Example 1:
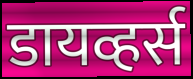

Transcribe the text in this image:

डायव्हर्स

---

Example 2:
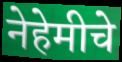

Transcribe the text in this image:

नेहेमीचे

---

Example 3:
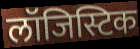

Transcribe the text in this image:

लॉजिस्टिक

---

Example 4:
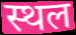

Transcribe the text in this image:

स्थल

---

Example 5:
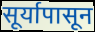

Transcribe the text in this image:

सूर्यापासून